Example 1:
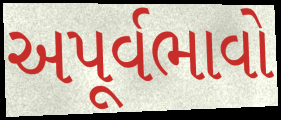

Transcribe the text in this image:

અપૂર્વભાવો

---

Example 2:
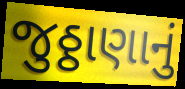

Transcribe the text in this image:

જુઠ્ઠાણાનું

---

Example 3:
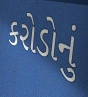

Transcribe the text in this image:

કરોડોનું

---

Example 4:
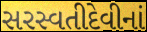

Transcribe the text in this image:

સરસ્વતીદેવીનાં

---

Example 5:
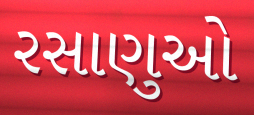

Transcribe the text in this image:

રસાણુઓ